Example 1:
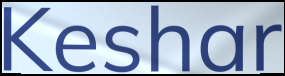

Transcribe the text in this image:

Keshar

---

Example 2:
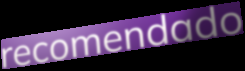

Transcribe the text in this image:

recomendado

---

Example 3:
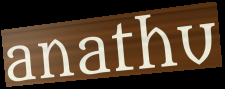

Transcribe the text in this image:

anathu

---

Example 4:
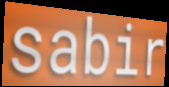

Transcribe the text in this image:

sabir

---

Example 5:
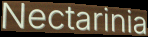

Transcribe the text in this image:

Nectarinia